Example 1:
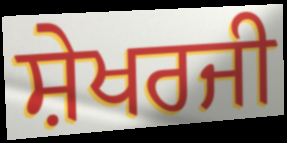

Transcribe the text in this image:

ਸ਼ੇਖਰਜੀ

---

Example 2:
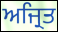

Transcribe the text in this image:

ਅਜ੍ਰਿਤ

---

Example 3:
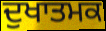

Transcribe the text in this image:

ਦੁਖਾਤਮਕ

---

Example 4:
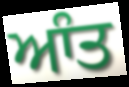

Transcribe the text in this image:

ਆੰਤ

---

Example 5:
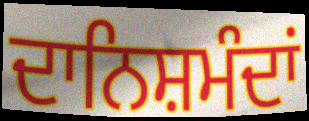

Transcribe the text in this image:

ਦਾਨਿਸ਼ਮੰਦਾਂ